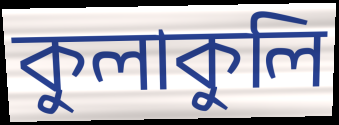
কুলাকুলি